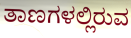
ತಾಣಗಳಲ್ಲಿರುವ